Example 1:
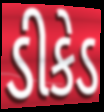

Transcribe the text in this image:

ડીકેડ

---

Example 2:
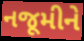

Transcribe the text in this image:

નજૂમીને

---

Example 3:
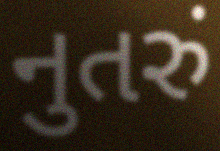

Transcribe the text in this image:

નુતરું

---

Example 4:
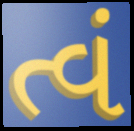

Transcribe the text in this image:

ત્વં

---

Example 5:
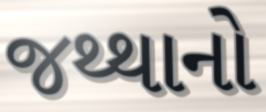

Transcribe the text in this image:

જથ્થાનો